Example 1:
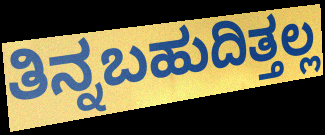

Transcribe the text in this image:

ತಿನ್ನಬಹುದಿತ್ತಲ್ಲ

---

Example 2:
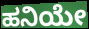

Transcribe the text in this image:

ಹನಿಯೇ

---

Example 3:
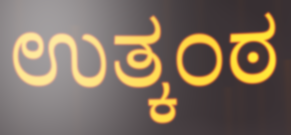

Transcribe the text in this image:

ಉತ್ಕಂಠ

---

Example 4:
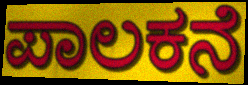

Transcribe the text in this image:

ಪಾಲಕನೆ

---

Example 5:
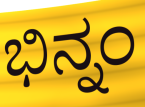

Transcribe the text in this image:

ಭಿನ್ನಂ